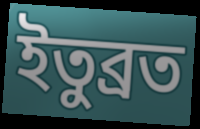
ইতুব্রত